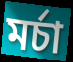
মৰ্চা